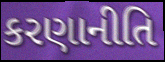
કરણાનીતિ